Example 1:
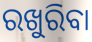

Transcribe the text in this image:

ରଖୁରିବା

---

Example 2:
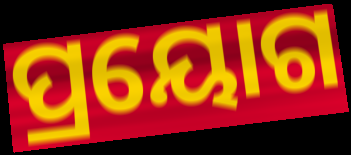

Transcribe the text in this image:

ପ୍ରୟୋଗ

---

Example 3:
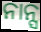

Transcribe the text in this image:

ନାନ୍ସ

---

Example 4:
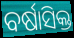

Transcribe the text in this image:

ବର୍ଷାସିକ୍ତ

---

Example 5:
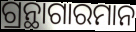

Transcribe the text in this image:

ଗ୍ରନ୍ଥାଗାରମାନ